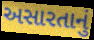
અસારતાનું